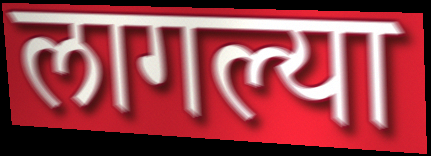
लागल्या